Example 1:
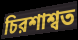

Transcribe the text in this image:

চিরশাশ্বত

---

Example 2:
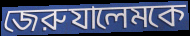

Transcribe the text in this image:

জেরুযালেমকে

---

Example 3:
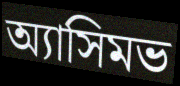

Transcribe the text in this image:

অ্যাসিমভ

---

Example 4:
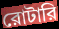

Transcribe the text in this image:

রোটারি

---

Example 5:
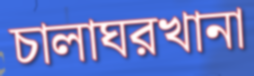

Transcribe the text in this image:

চালাঘরখানা